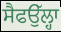
ਸੈਫਉੱਲ੍ਹਾ